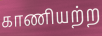
காணியற்ற